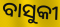
ବାସୁକୀ